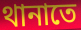
থানাতে